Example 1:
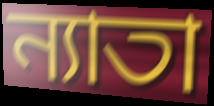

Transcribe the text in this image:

ন্যাতা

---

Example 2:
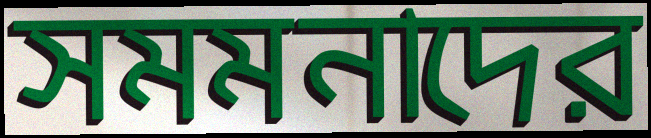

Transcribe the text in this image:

সমমনাদের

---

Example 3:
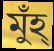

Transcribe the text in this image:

মুঁহ্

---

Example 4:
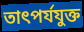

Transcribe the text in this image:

তাৎপর্যযুক্ত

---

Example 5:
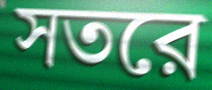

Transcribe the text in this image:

সতরে